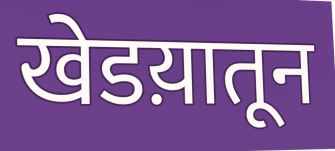
खेडय़ातून